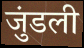
जुंडली